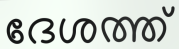
ദേശത്ത്